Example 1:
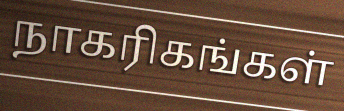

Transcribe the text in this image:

நாகரிகங்கள்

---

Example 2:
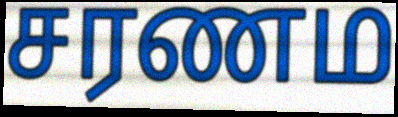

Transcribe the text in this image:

சரணம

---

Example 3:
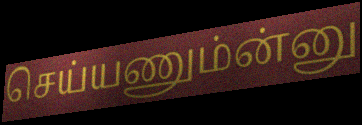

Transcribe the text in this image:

செய்யணும்ன்னு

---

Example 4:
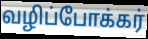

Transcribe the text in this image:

வழிப்போக்கர்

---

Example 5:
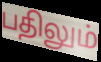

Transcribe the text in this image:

பதிலும்